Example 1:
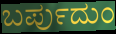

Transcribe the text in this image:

ಬರ್ಪುದುಂ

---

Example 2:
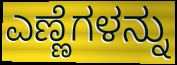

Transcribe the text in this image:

ಎಣ್ಣೆಗಳನ್ನು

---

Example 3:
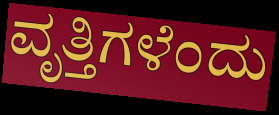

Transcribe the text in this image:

ವೃತ್ತಿಗಳೆಂದು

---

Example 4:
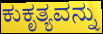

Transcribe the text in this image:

ಕುಕೃತ್ಯವನ್ನು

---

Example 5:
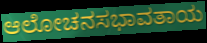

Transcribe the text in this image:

ಆಲೋಚನಸಭಾವತಾಯ